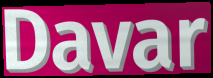
Davar